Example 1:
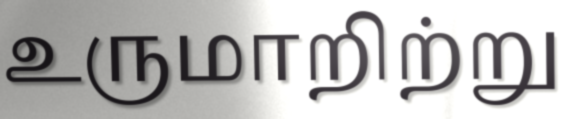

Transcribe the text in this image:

உருமாறிற்று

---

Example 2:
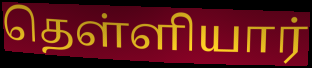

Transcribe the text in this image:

தெள்ளியார்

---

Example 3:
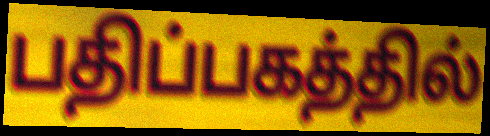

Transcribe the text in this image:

பதிப்பகத்தில்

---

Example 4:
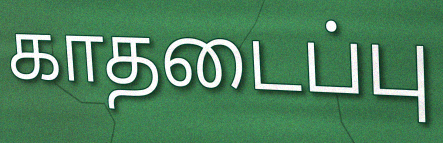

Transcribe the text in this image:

காதடைப்பு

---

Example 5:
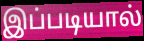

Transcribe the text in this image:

இப்படியால்